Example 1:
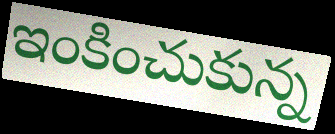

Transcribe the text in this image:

ఇంకించుకున్న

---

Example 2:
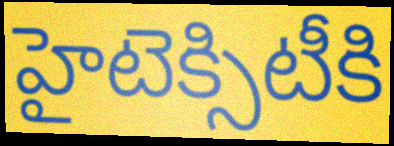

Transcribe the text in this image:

హైటెక్సిటీకి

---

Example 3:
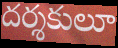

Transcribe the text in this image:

దర్శకులూ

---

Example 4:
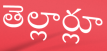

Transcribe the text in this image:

తెల్లార్లూ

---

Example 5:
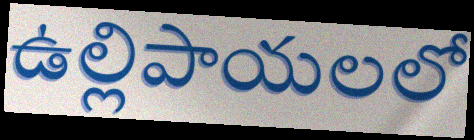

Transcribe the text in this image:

ఉల్లిపాయలలో